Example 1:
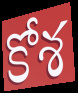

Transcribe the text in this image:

కోశ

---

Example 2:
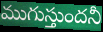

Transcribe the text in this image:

ముగుస్తుందనీ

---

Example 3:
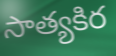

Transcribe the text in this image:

సాత్యకిర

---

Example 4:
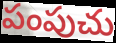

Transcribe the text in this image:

పంపుచు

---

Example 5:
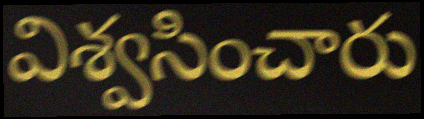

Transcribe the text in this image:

విశ్వసించారు